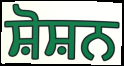
ਸ਼ੋਸ਼ਨ